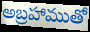
అబ్రహాముతో